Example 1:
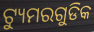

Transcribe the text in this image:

ଟ୍ୟୁମରଗୁଡିକ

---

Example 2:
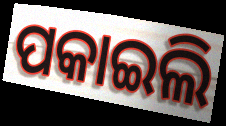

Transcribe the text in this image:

ପକାଇଲି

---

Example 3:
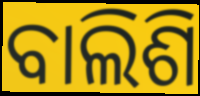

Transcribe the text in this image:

ବାଲିଶି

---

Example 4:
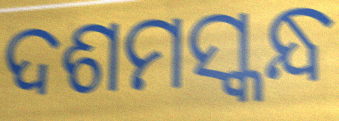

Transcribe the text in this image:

ଦଶମସ୍କନ୍ଧ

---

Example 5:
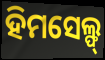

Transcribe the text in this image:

ହିମସେଲ୍ଫ୍